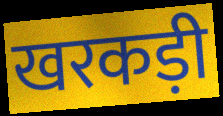
खरकड़ी